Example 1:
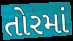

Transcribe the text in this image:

તોરમાં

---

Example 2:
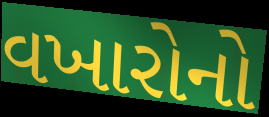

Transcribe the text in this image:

વખારોનો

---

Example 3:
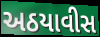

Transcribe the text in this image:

અઠયાવીસ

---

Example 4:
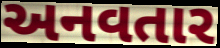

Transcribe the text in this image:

અનવતાર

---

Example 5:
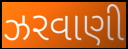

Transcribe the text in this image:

ઝરવાણી